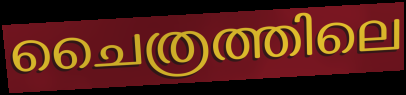
ചൈത്രത്തിലെ